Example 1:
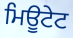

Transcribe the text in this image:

ਮਿਊਟੇਟ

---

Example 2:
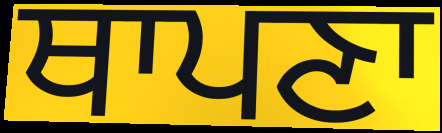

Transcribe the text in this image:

ਥਾਪਣਾ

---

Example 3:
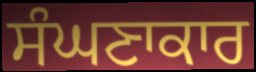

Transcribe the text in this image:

ਸੰਘਣਾਕਾਰ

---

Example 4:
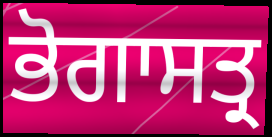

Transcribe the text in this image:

ਭੋਗਾਸਤ੍ਰ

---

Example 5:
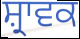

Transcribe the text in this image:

ਸ਼੍ਰਾਵਕ